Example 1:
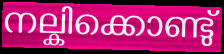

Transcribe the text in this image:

നല്കിക്കൊണ്ടു്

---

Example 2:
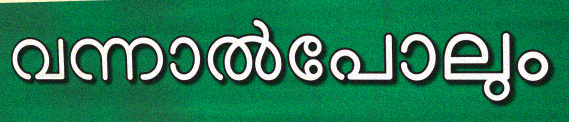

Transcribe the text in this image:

വന്നാൽപോലും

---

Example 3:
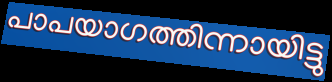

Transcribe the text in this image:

പാപയാഗത്തിന്നായിട്ടു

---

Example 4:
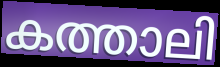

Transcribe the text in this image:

കത്താലി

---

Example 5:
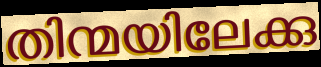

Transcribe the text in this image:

തിന്മയിലേക്കു